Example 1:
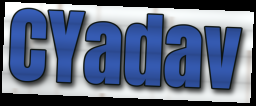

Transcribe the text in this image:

CYadav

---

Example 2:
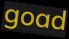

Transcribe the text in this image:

goad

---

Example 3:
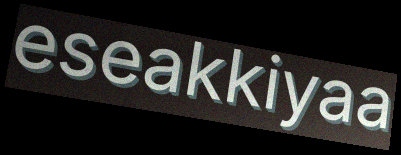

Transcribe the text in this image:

eseakkiyaa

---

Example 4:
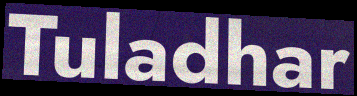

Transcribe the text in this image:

Tuladhar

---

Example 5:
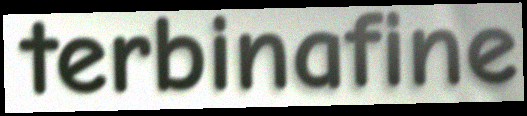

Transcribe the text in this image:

terbinafine